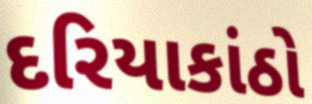
દરિયાકાંઠો